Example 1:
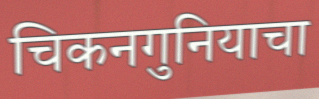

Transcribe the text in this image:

चिकनगुनियाचा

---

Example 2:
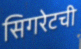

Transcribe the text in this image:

सिगरेटची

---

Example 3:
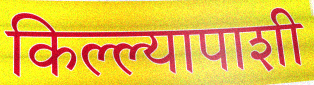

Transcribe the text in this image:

किल्ल्यापाशी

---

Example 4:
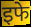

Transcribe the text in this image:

इफे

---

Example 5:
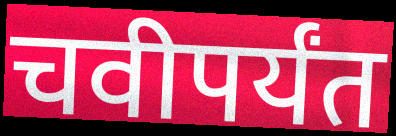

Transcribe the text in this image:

चवीपर्यंत